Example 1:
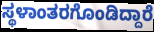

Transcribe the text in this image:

ಸ್ಥಳಾಂತರಗೊಂಡಿದ್ದಾರೆ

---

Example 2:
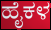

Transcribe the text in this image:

ಹೈಕಳ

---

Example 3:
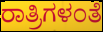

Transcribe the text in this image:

ರಾತ್ರಿಗಳಂತೆ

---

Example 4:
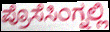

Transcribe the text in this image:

ಪ್ರೊಸೆಸಿಂಗ್ನಲ್ಲಿ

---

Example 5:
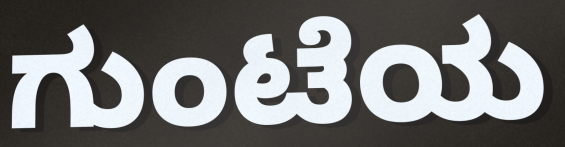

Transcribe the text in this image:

ಗುಂಟೆಯ